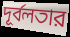
দূর্বলতার